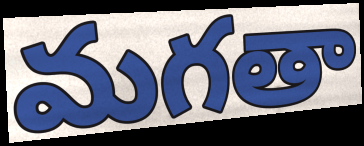
మగతా